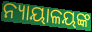
ନ୍ୟାୟାଳୟଙ୍କ